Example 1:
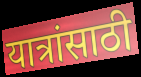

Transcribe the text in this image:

यात्रांसाठी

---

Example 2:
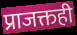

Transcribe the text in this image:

प्राजक्तही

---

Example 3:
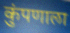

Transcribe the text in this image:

कुंपणाला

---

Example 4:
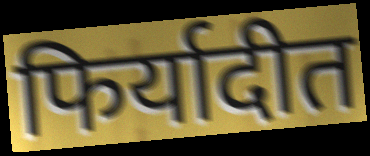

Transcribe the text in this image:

फिर्यादीत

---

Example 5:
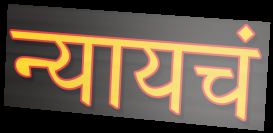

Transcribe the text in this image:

न्यायचं